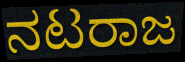
ನಟರಾಜ